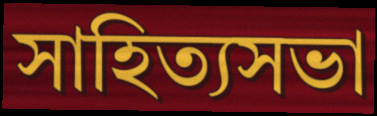
সাহিত্যসভা